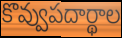
కొవ్వుపదార్థాల